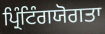
ਪ੍ਰਿੰਟਿੰਗਯੋਗਤਾ